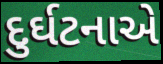
દુર્ઘટનાએ